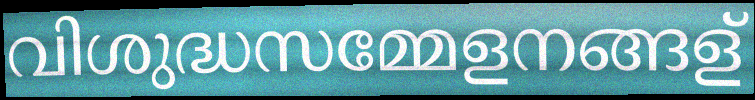
വിശുദ്ധസമ്മേളനങ്ങള്